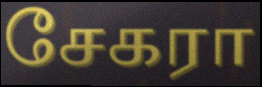
சேகரா